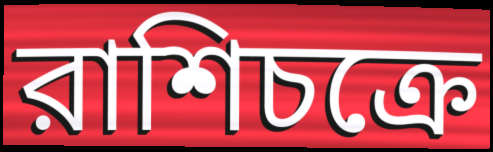
রাশিচক্রে